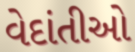
વેદાંતીઓ